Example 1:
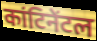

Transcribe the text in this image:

कांटिनेंटल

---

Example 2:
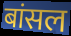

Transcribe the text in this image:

बांसल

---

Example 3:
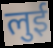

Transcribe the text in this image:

लुई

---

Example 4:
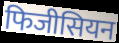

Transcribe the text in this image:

फिजीसियन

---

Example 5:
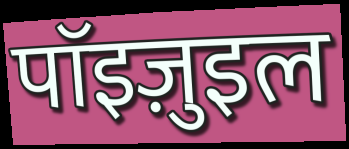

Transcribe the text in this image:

पॉइज़ुइल